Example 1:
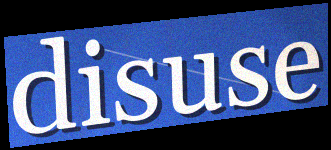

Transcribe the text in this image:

disuse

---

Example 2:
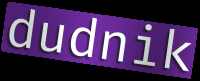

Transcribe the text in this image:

dudnik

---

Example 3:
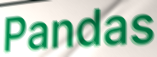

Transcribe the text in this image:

Pandas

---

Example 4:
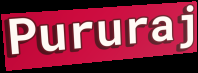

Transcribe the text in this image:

Pururaj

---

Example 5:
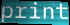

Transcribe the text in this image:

print